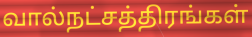
வால்நட்சத்திரங்கள்